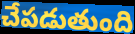
చేపడుతుంది